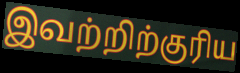
இவற்றிற்குரிய